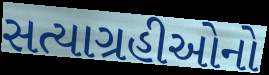
સત્યાગ્રહીઓનો